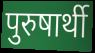
पुरुषार्थी